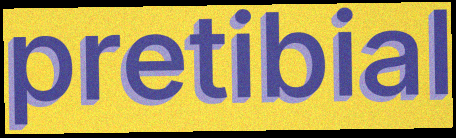
pretibial